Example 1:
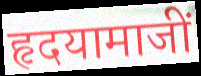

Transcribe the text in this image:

हृदयामाजीं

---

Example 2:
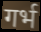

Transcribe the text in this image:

गर्भ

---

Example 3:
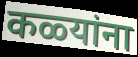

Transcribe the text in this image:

कळ्यांना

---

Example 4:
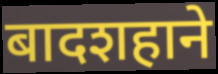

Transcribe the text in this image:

बादशहाने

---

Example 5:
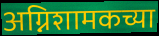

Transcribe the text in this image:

अग्निशामकच्या